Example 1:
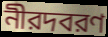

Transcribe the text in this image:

নীরদবরণ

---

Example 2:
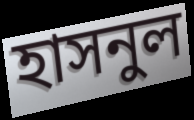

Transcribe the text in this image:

হাসনুল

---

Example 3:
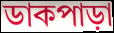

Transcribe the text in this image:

ডাকপাড়া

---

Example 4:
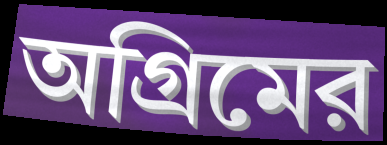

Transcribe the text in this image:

অগ্রিমের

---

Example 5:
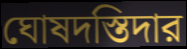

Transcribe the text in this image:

ঘোষদস্তিদার